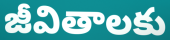
జీవితాలకు